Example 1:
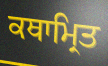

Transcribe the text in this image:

ਕਥਾਮ੍ਰਿਤ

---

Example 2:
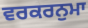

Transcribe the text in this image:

ਵਰਕਰਨੁਮਾ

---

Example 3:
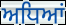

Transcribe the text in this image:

ਅਧਿਆਂ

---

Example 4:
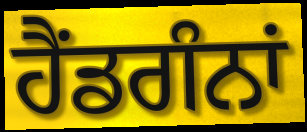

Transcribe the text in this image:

ਹੈਂਡਗੰਨਾਂ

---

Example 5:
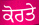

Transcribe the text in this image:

ਕੋਰਤੇ